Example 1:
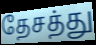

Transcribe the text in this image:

தேசத்து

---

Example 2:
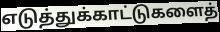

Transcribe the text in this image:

எடுத்துக்காட்டுகளைத்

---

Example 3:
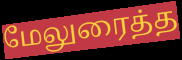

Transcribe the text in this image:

மேலுரைத்த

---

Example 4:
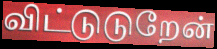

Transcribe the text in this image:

விட்டுடுறேன்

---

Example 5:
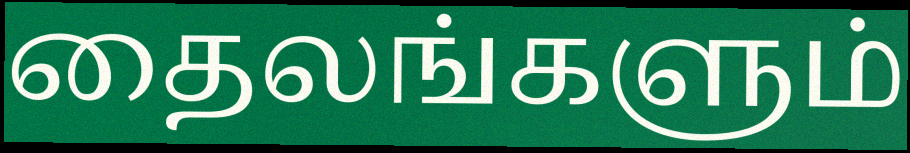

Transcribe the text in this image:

தைலங்களும்